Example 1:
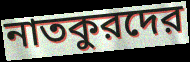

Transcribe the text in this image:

নাতকুরদের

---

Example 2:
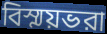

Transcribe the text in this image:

বিস্ময়ভরা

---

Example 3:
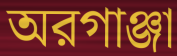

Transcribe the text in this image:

অরগাঞ্জা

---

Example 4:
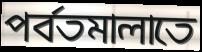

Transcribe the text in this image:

পর্বতমালাতে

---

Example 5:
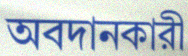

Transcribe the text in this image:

অবদানকারী